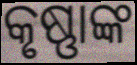
କୃଷ୍ଣାଙ୍କ